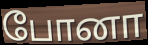
போனா